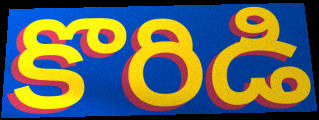
కొరిడి